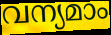
വന്യമാം